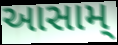
આસામ્